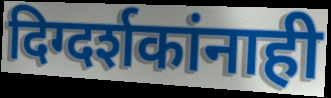
दिग्दर्शकांनाही